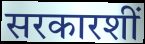
सरकारशीं